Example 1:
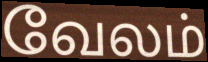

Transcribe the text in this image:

வேலம்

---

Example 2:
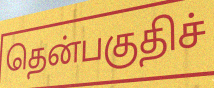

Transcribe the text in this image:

தென்பகுதிச்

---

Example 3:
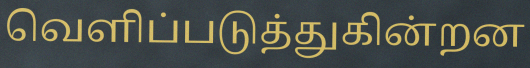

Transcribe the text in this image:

வெளிப்படுத்துகின்றன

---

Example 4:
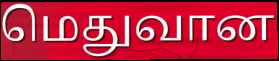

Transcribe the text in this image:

மெதுவான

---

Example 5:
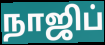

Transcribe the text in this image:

நாஜிப்